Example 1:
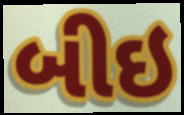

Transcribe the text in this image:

બીઇ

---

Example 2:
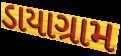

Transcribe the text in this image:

ડાયાગ્રામ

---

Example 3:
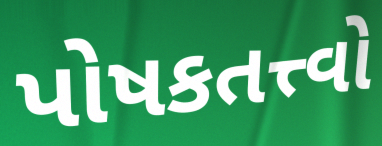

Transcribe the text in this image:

પોષકતત્ત્વો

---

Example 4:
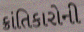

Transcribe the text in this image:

ક્રાંતિકારોની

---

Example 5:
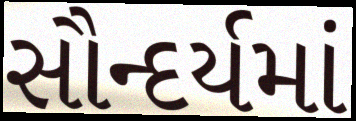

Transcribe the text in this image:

સૌન્દર્યમાં